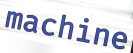
machine